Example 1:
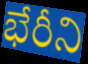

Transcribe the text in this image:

భేరీని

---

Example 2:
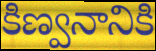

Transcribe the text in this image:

కిణ్వనానికి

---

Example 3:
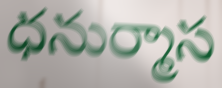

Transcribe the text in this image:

ధనుర్మాస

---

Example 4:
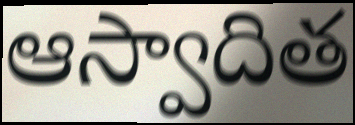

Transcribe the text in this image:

ఆస్వాదిత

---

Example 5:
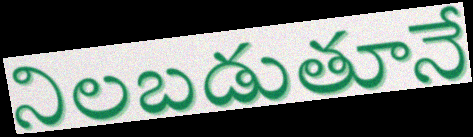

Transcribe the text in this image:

నిలబడుతూనే